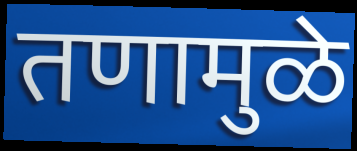
तणामुळे